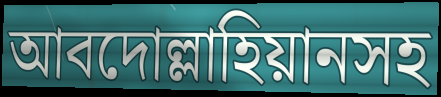
আবদোল্লাহিয়ানসহ